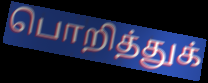
பொறித்துக்